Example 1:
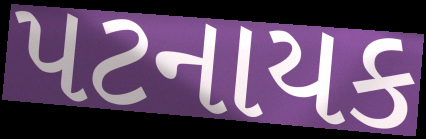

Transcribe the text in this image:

પટનાયક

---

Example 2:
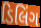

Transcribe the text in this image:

ડિલિંગ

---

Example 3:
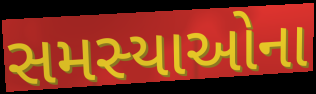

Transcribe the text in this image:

સમસ્યાઓના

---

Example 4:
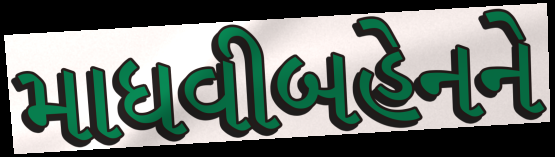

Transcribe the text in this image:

માધવીબહેનને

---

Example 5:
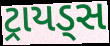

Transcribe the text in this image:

ટ્રાયડ્સ